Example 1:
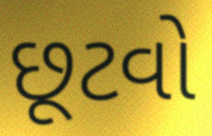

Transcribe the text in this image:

છૂટવો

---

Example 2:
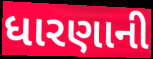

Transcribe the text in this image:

ધારણાની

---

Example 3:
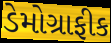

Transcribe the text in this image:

ડેમોગ્રાફીક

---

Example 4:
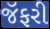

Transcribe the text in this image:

જૅફરી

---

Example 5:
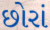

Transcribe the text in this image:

છોરાં